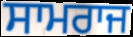
ਸਾਮਰਾਜ